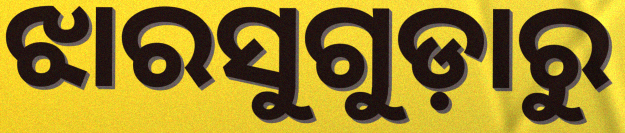
ଝାରସୁଗୁଡ଼ାରୁ